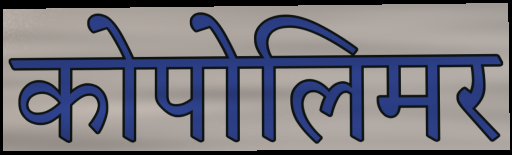
कोपोलिमर